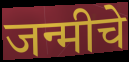
जन्मीचे